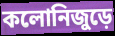
কলোনিজুড়ে